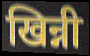
खिन्नी